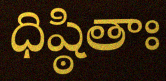
ధిష్ఠితాః